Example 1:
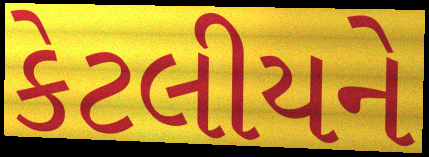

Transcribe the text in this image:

કેટલીયને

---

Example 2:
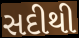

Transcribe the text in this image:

સદીથી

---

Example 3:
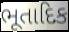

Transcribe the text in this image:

ભૂતાદિક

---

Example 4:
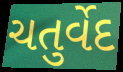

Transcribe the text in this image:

ચતુર્વેદ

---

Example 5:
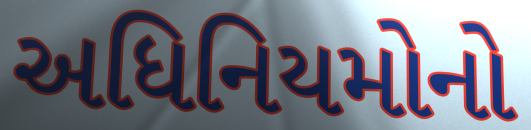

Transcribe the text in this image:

અધિનિયમોનો